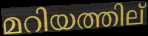
മറിയത്തില്